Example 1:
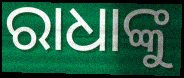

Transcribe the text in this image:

ରାଧାଙ୍କୁ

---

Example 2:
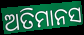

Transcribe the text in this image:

ଅତିମାନସ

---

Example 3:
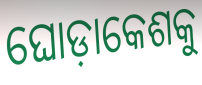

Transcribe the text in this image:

ଘୋଡ଼ାକେଶକୁ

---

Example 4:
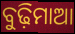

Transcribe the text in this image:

ବୁଢ଼ିମାଆ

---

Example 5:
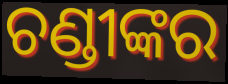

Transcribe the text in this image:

ଚଣ୍ଡୀଙ୍କର